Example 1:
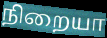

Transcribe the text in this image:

நிறையா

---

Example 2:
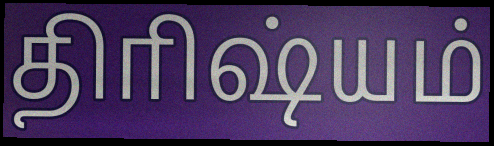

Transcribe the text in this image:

திரிஷ்யம்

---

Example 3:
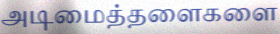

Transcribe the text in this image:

அடிமைத்தளைகளை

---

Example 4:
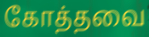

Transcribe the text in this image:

கோத்தவை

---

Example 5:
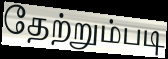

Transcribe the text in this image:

தேற்றும்படி